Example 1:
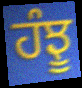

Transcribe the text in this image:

ਹੰਝੂ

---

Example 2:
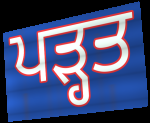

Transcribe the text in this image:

ਪਡ਼੍ਹਤ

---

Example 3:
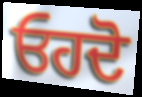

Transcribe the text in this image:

ਓਹਦੋ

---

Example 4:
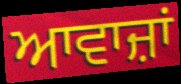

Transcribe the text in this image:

ਆਵਾਜ਼ਾਂ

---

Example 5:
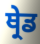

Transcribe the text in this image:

ਥ੍ਰੇਡ